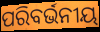
ପରିବର୍ଭନୀୟ